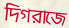
দিগরাজে